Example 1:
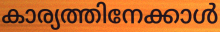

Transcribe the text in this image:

കാര്യത്തിനേക്കാൾ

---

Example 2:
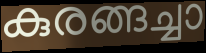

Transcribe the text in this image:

കുരങ്ങച്ചാ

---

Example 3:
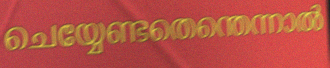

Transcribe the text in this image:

ചെയ്യേണ്ടതെന്തെന്നാൽ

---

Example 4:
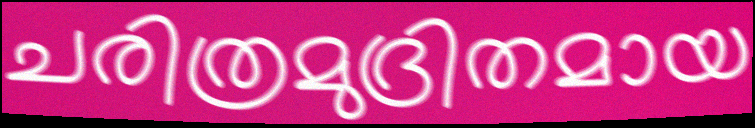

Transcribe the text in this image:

ചരിത്രമുദ്രിതമായ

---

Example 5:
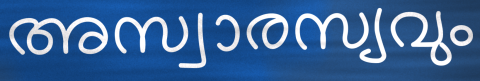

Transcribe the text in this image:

അസ്വാരസ്യവും